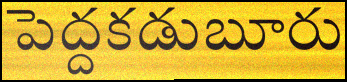
పెద్దకడుబూరు